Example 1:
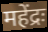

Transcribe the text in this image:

महेंद्रः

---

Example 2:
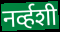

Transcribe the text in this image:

नर्व्हशी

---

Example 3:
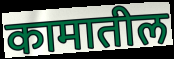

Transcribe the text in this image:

कामातील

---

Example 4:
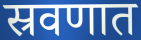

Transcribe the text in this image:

स्रवणात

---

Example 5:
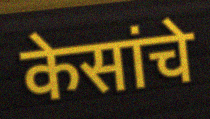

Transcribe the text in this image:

केसांचे